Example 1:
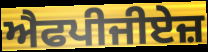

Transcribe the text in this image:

ਐਫਪੀਜੀਏਜ਼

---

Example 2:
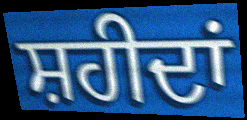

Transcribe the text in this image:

ਸ਼ਹੀਦਾਂ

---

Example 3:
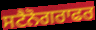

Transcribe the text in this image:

ਸਟੈਨੋਗਰਾਫਰ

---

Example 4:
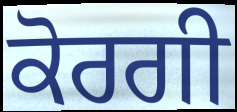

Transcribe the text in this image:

ਕੋਰਗੀ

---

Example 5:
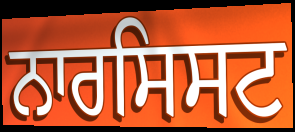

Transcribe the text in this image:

ਨਾਰਸਿਸਟ